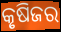
କୃଷିଜର